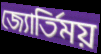
জ্যোর্তিময়